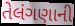
તેલંગણાની